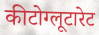
कीटोग्लूटारेट